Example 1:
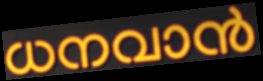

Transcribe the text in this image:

ധനവാൻ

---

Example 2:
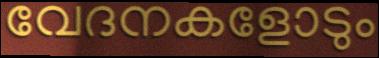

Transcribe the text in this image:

വേദനകളോടും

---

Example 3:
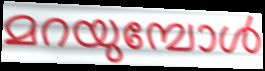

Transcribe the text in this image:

മറയുമ്പോൾ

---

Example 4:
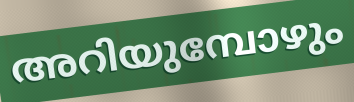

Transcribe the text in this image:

അറിയുമ്പോഴും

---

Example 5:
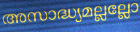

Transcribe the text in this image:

അസാദ്ധ്യമല്ലല്ലോ